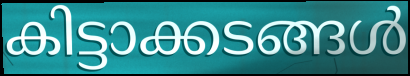
കിട്ടാക്കടങ്ങൾ